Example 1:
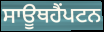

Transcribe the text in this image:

ਸਾਊਥਹੈਂਪਟਨ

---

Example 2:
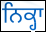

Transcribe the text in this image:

ਨਿਕ੍ਹਾ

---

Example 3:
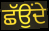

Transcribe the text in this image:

ਛੱਉਂਦੇ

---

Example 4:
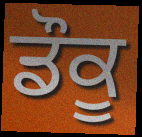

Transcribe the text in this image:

ਡੌਕੂ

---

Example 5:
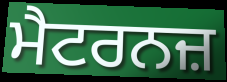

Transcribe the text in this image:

ਮੈਟਰਨਜ਼